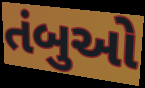
તંબુઓ